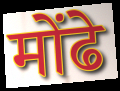
मोंढे